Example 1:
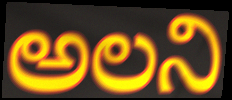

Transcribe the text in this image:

అలని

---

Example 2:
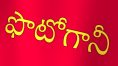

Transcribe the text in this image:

ఫొటోగానీ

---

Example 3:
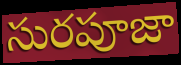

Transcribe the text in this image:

సురపూజా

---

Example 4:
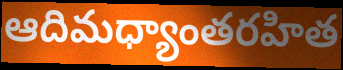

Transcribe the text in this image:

ఆదిమధ్యాంతరహిత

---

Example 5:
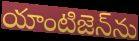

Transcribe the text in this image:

యాంటిజెన్‌ను